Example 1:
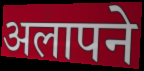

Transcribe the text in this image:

अलापने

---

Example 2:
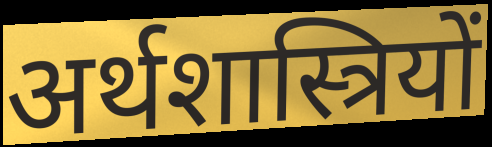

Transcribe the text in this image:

अर्थशास्त्रियों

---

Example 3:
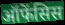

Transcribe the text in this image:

ऑफेंसिस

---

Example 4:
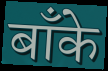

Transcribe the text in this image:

बाँके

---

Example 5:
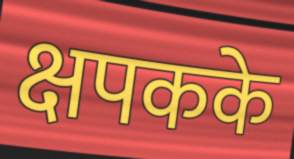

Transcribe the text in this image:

क्षपकके